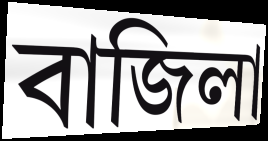
বাজিলা